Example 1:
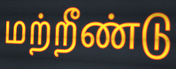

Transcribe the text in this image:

மற்றீண்டு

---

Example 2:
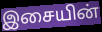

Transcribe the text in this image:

இசையின்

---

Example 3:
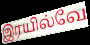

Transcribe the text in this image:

இரயில்வே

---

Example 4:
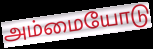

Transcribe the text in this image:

அம்மையோடு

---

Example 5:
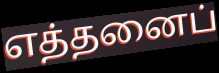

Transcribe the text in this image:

எத்தனைப்